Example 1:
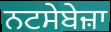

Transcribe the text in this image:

ਨਟਸੇਬੇਜ਼ਾ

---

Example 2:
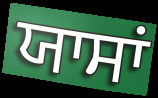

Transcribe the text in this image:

ਯਾਸਾਂ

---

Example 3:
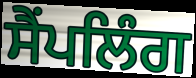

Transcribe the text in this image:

ਸੈਂਪਲਿੰਗ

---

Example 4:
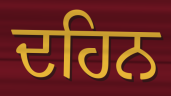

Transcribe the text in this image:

ਦਹਿਨ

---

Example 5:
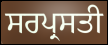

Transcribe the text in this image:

ਸਰਪ੍ਰਸਤੀ